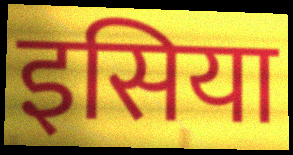
इसिया